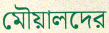
মৌয়ালদের